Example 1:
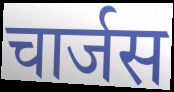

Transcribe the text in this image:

चार्जस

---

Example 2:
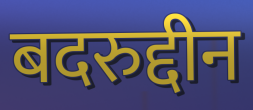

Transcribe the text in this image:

बदरुद्दीन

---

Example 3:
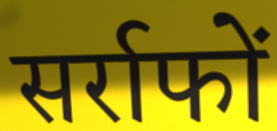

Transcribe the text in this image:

सर्राफों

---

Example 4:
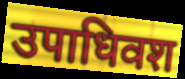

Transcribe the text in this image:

उपाधिवश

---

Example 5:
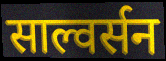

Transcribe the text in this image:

साल्वर्सन